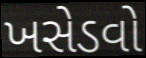
ખસેડવો